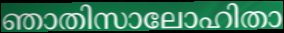
ഞാതിസാലോഹിതാ